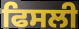
ਫਿਸਲੀ